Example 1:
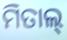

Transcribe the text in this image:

ମିତାଲ୍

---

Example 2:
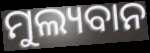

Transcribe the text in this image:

ମୁଲ୍ୟବାନ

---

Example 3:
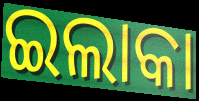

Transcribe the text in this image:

ଇଲାକା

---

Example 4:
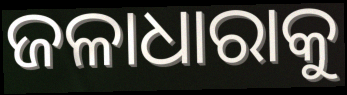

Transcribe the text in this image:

ଜଳାଧାରାକୁ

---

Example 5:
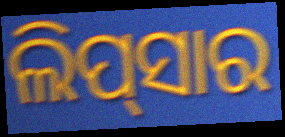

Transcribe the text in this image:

ଲିପ୍‌ସାର